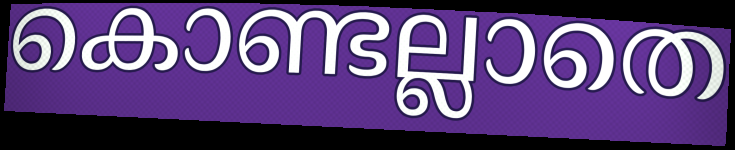
കൊണ്ടല്ലാതെ